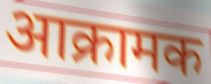
आक्रामक